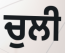
ਚੁਲੀ